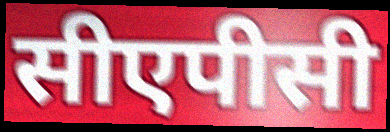
सीएपीसी